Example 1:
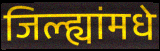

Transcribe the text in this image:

जिल्ह्यांमधे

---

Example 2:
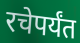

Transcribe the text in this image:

रचेपर्यंत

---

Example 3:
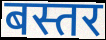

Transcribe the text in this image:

बस्तर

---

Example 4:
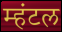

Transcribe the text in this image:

म्हंटल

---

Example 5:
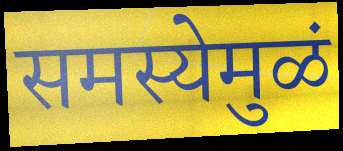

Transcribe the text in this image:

समस्येमुळं